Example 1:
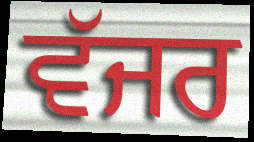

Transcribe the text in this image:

ਵੱਜਰ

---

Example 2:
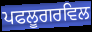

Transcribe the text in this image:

ਪਫਲੂਗਰਵਿਲ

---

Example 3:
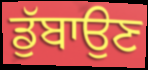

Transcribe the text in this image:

ਡੁੱਬਾਉਣ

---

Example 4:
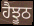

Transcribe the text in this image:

ਹੈਝੂਠ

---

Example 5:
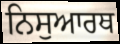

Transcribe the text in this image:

ਨਿਸੁਆਰਥ